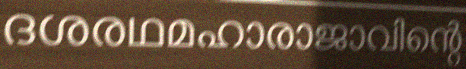
ദശരഥമഹാരാജാവിന്റെ